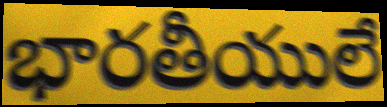
భారతీయులే